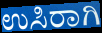
ಉಸಿರಾಗಿ